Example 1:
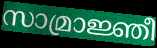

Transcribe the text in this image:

സാമ്രാജ്ഞീ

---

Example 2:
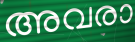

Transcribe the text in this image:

അവരാ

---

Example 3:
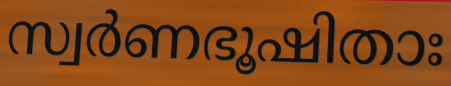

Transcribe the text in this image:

സ്വർണഭൂഷിതാഃ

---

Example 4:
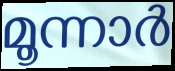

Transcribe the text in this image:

മൂന്നാർ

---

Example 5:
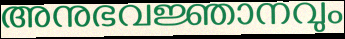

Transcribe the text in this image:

അനുഭവജ്ഞാനവും